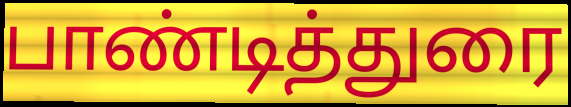
பாண்டித்துரை